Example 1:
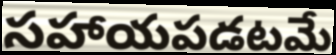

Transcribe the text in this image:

సహాయపడటమే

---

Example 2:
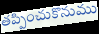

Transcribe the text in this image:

తప్పించుకొనుము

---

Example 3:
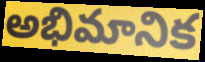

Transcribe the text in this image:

అభిమానిక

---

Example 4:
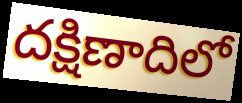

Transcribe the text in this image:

దక్షిణాదిలో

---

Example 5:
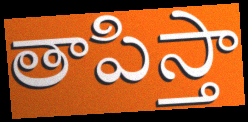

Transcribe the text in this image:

తాపిస్తా